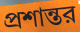
প্রশান্তর